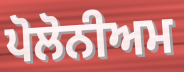
ਪੋਲੋਨੀਅਮ